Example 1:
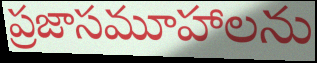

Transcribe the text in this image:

ప్రజాసమూహాలను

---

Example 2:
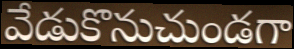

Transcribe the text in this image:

వేడుకొనుచుండగా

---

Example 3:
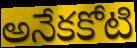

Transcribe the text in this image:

అనేకకోటి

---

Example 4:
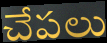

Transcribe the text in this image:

చేపలు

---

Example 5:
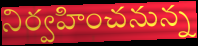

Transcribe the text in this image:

నిర్వహించనున్న